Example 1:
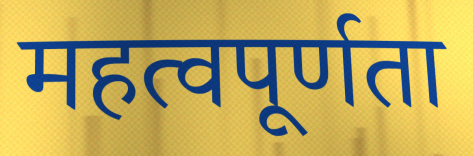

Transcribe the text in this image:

महत्वपूर्णता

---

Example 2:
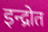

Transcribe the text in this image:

इन्द्रोत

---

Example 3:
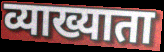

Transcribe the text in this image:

व्याख्याता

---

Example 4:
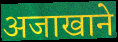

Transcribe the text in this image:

अजाखाने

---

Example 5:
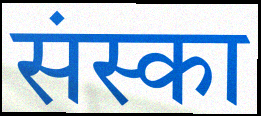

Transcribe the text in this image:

संस्का